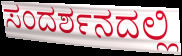
ಸಂದರ್ಶನದಲ್ಲಿ